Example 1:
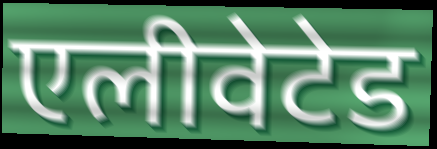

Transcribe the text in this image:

एलीवेटेड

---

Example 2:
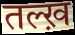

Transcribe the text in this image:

तल्ख़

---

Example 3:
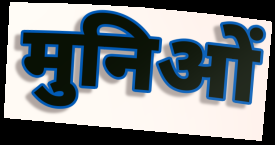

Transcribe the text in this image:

मुनिओं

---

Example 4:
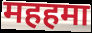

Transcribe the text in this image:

महहमा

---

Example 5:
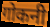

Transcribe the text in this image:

गोकनी